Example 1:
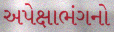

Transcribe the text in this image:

અપેક્ષાભંગનો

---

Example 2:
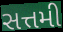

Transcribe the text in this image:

સત્તમી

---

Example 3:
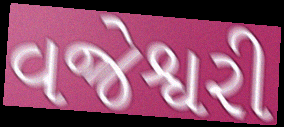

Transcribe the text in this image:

વજ્રેશ્વરી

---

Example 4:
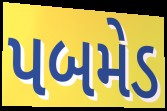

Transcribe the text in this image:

પબમેડ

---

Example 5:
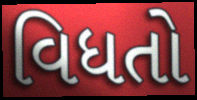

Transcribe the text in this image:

વિધતો